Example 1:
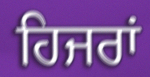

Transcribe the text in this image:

ਹਿਜਰਾਂ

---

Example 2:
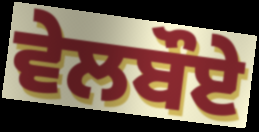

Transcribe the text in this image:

ਵੇਲਬੌਏ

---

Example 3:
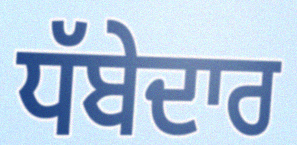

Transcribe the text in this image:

ਧੱਬੇਦਾਰ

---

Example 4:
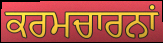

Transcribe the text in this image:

ਕਰਮਚਾਰਨਾਂ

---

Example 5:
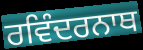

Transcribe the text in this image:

ਰਵਿੰਦਰਨਾਥ